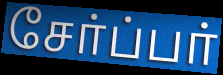
சேர்ப்பர்